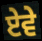
ਏਵੇ